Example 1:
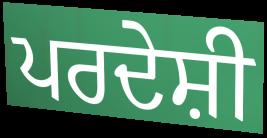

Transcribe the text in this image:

ਪਰਦੇਸ਼ੀ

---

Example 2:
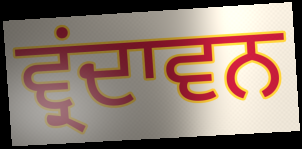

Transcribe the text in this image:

ਵ੍ਰਂਦਾਵਨ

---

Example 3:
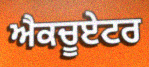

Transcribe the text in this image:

ਐਕਚੂਏਟਰ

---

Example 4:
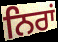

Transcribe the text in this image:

ਨਿਰਾਂ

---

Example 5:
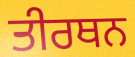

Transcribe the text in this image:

ਤੀਰਥਨ